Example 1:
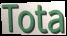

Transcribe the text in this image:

Tota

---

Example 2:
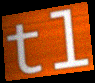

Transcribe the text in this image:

tl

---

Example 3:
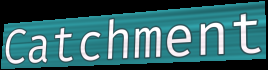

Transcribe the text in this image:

Catchment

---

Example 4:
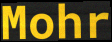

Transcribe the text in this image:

Mohr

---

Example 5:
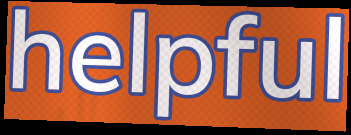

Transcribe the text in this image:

helpful